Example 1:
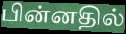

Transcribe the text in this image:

பின்னதில்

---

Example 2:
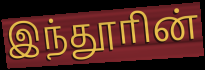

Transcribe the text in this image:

இந்தூரின்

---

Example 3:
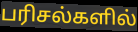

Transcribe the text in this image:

பரிசல்களில்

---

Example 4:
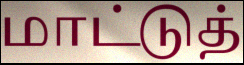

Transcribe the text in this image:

மாட்டுத்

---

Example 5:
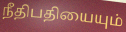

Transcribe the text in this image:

நீதிபதியையும்